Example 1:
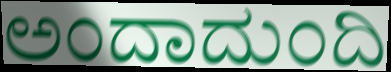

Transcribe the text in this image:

ಅಂದಾದುಂದಿ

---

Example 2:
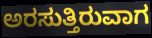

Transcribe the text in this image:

ಅರಸುತ್ತಿರುವಾಗ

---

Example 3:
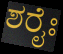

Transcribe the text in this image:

ಶರೈಃ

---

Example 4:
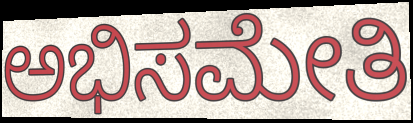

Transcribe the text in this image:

ಅಭಿಸಮೇತಿ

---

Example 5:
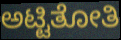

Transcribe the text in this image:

ಅಟ್ಟಿತೋತಿ